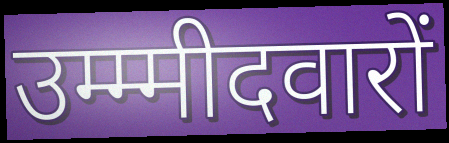
उम्म्मीदवारों